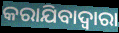
କରାଯିବାଦ୍ୱାରା